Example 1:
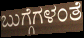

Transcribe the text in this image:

ಬುಗ್ಗೆಗಳಂತೆ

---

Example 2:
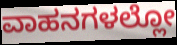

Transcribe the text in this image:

ವಾಹನಗಳಲ್ಲೋ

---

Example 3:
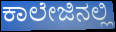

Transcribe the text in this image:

ಕಾಲೇಜಿನಲ್ಲಿ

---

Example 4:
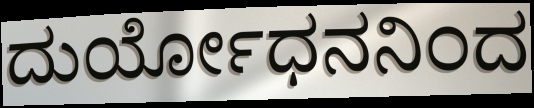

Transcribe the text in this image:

ದುರ್ಯೋಧನನಿಂದ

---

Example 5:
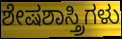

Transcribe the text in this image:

ಶೇಷಶಾಸ್ತ್ರಿಗಳು